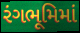
રંગભૂમિમાં